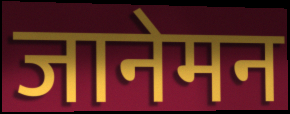
जानेमन